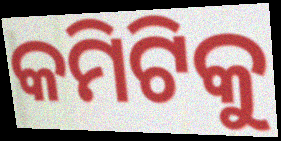
କମିଟିକୁ